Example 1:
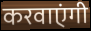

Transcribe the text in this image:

करवाएंगी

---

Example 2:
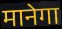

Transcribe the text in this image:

मानेगा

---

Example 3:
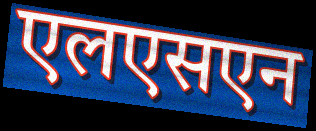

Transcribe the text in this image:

एलएसएन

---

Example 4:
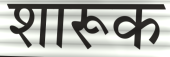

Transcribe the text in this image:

शारूक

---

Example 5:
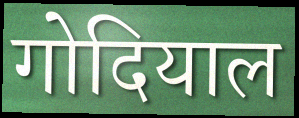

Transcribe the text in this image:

गोदियाल